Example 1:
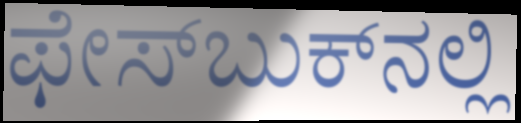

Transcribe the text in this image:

ಫೇಸ್‌ಬುಕ್‌ನಲ್ಲಿ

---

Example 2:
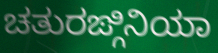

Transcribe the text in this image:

ಚತುರಙ್ಗಿನಿಯಾ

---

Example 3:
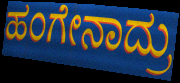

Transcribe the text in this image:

ಹಂಗೇನಾದ್ರು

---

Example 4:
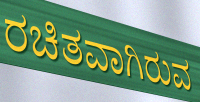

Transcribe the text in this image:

ರಚಿತವಾಗಿರುವ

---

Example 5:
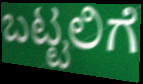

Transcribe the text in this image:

ಬಟ್ಟಲಿಗೆ